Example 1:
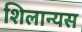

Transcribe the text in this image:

शिलान्यस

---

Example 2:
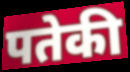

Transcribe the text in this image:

पतेकी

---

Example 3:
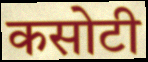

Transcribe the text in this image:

कसोटी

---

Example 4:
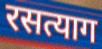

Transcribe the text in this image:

रसत्याग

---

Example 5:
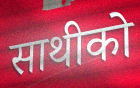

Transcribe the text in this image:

साथीको